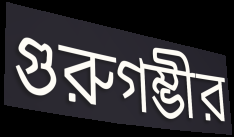
গুরুগম্ভীর